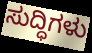
ಸುದ್ಧಿಗಳು